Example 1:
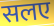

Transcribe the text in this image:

सलए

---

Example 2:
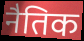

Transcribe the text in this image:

नैतिक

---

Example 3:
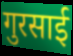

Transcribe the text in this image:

गुरसाई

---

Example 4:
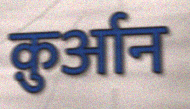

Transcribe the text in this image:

क़ुर्आन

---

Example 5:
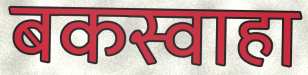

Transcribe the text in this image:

बकस्वाहा